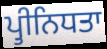
ਪ੍ਤੀਨਿਧਤਾ